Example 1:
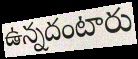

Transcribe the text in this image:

ఉన్నదంటారు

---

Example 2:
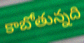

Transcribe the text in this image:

కాబోతున్నది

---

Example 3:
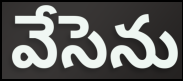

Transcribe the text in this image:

వేసెను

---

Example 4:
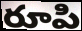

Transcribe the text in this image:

రూపి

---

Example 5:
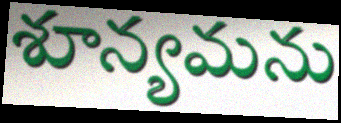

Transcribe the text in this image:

శూన్యమను